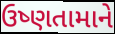
ઉષ્ણતામાને